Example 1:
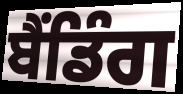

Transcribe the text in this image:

ਬੈਂਡਿੰਗ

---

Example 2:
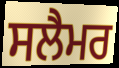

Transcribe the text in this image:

ਸਲੈਮਰ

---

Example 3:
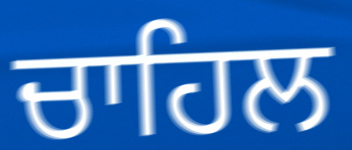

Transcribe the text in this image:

ਚਾਹਿਲ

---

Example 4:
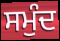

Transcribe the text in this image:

ਸਮੁੰਦ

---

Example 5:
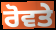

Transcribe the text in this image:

ਰੋਵਤੇ